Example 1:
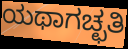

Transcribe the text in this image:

ಯಥಾಗಚ್ಛತಿ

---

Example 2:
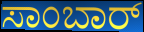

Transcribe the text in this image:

ಸಾಂಬಾರ್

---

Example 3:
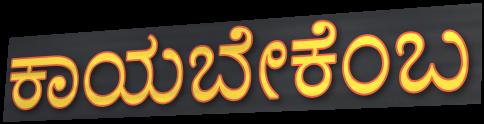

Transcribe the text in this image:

ಕಾಯಬೇಕೆಂಬ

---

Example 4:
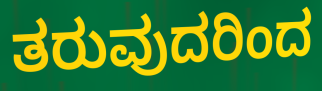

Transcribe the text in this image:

ತರುವುದರಿಂದ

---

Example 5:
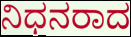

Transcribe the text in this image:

ನಿಧನರಾದ